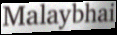
Malaybhai